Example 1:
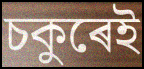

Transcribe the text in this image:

চকুৰেই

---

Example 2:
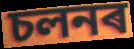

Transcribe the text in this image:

চলনৰ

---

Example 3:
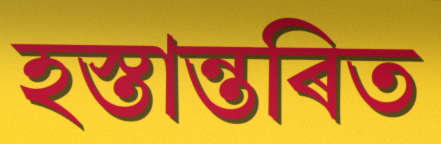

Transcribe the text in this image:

হস্তান্তৰিত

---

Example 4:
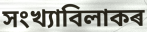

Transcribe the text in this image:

সংখ্যাবিলাকৰ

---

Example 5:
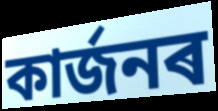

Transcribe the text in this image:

কাৰ্জনৰ